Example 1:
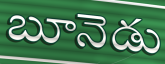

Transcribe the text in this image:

బూనెడు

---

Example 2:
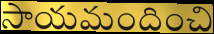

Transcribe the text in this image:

సాయమందించి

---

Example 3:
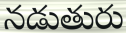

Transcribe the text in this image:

నడుతురు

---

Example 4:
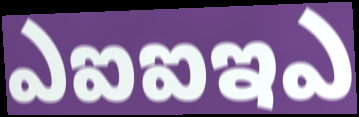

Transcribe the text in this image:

ఎఐఐఇఎ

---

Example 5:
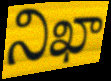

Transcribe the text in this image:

నిఖా